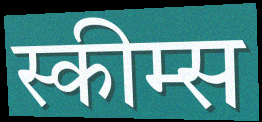
स्कीम्स